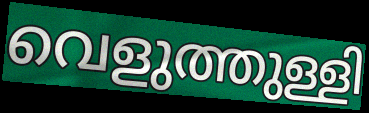
വെളുത്തുള്ളി